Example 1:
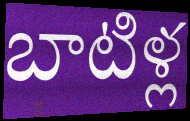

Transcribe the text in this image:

బాటిళ్ల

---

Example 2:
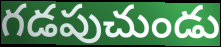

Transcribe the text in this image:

గడపుచుండు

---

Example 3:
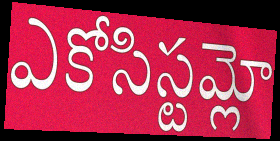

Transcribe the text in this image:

ఎకోసిస్టమ్లో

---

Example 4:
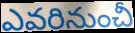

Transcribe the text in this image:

ఎవరినుంచీ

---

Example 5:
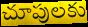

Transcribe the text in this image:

చూపులకు